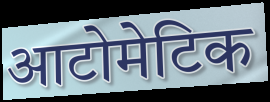
आटोमेटिक